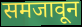
समजावून